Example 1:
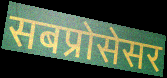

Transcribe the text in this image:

सबप्रोसेसर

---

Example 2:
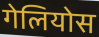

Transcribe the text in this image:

गेलियोस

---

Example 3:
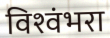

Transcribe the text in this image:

विश्वंभरा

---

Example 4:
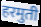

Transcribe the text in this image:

हरमुती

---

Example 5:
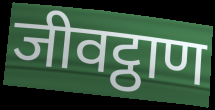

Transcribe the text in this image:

जीवट्ठाण